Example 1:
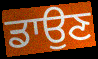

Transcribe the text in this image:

ਡਾਉਣ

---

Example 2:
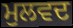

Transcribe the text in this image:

ਮੁਲਵਦ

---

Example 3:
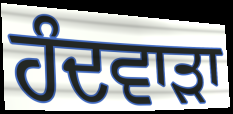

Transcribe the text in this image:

ਹੰਦਵਾੜਾ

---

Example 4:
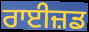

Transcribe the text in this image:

ਰਾਈਜ਼ਡ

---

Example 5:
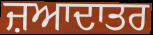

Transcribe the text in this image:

ਜ਼ਆਦਾਤਰ